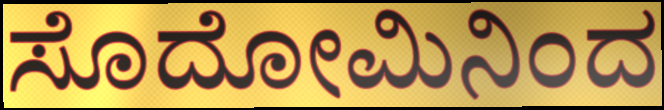
ಸೊದೋಮಿನಿಂದ